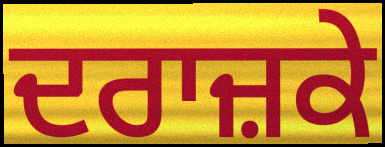
ਦਰਾਜ਼ਕੇ